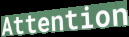
Attention